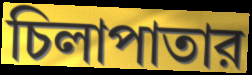
চিলাপাতার